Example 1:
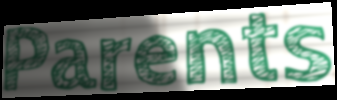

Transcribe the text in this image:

Parents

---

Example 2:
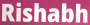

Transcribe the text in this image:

Rishabh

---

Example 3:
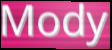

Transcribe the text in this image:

Mody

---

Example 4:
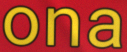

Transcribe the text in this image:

ona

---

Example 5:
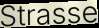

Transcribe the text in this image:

Strasse